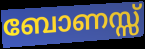
ബോണസ്സ്